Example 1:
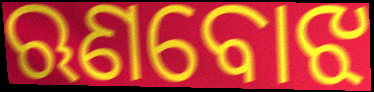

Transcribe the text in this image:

ଋଣବୋଝ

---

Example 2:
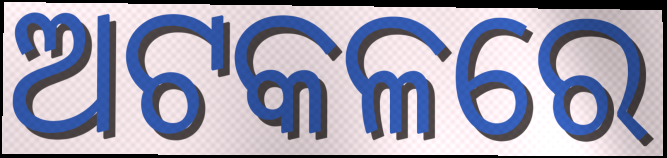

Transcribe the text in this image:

ଅଟକଳରେ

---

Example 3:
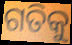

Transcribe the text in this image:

ଗତିକୁ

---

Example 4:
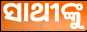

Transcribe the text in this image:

ସାଥୀଙ୍କୁ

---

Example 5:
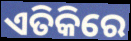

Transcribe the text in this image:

ଏତିକିରେ